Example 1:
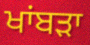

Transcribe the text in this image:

ਖਾਂਬੜਾ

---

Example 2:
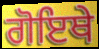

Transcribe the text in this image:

ਗੋਇਥੇ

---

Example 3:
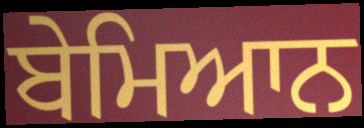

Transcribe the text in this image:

ਬੇਮਿਆਨ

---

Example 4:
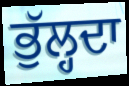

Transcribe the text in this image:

ਭੁੱਲ੍ਹਦਾ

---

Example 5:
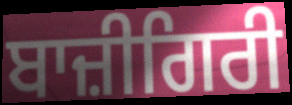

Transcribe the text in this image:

ਬਾਜ਼ੀਗਿਰੀ